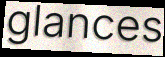
glances